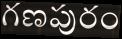
గణపురం